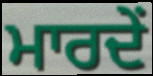
ਮਾਰਦੇਂ